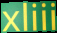
xliii